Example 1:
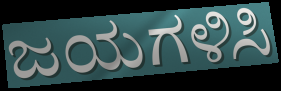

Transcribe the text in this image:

ಜಯಗಳಿಸಿ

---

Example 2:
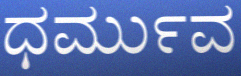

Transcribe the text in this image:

ಧರ್ಮುವ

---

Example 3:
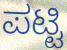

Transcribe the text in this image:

ಪಟ್ಟಿ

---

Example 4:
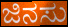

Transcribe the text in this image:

ಜಿನಸು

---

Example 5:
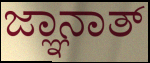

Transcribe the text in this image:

ಜ್ಞಾನಾತ್